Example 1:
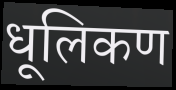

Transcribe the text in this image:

धूलिकण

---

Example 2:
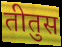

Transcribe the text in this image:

तीतुस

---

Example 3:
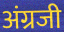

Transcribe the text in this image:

अंग्रजी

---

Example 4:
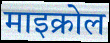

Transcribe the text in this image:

माइक्रोल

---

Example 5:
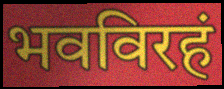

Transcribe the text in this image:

भवविरहं